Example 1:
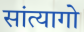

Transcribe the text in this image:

सांत्यागो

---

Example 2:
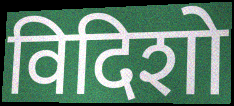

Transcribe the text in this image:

विदिशो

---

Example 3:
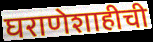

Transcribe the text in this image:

घराणेशाहीची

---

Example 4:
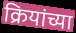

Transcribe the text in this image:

क्रियांच्या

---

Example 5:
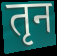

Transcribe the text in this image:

तृन